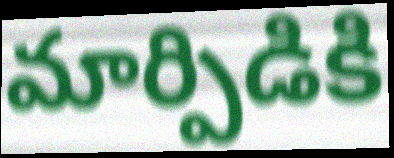
మార్పిడికి